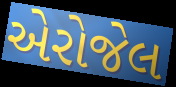
એરોજેલ